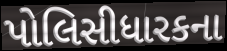
પોલિસીધારકના